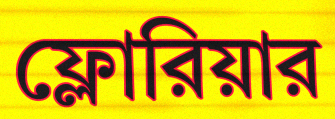
ফ্লোরিয়ার